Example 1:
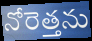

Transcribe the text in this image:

నోరెత్తను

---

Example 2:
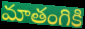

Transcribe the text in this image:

మాతంగికి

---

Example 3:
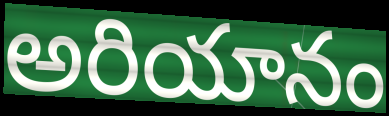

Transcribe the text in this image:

అరియానం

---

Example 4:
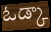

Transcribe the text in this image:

ఓడ్కా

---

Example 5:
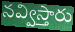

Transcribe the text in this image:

నవ్విస్తారు